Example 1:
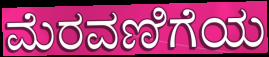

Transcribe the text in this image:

ಮೆರವಣಿಗೆಯ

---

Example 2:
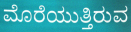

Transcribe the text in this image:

ಮೊರೆಯುತ್ತಿರುವ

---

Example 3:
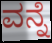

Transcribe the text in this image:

ವನ್ನೆ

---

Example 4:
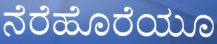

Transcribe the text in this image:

ನೆರೆಹೊರೆಯೂ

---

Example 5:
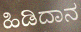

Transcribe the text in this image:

ಹಿಡಿದಾನ